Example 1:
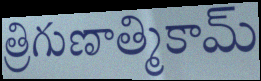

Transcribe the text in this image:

త్రిగుణాత్మికామ్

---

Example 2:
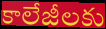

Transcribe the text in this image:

కాలేజీలకు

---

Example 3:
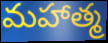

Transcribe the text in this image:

మహాత్మ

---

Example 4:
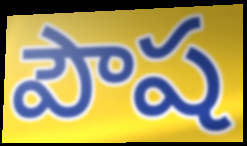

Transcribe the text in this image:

పౌష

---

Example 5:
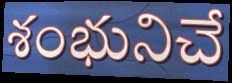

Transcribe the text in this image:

శంభునిచే